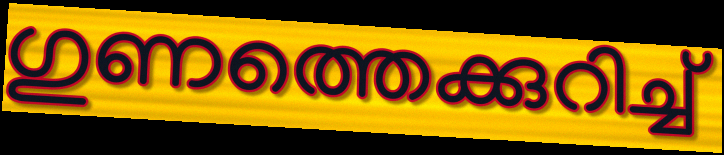
ഗുണത്തെക്കുറിച്ച്